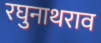
रघुनाथराव